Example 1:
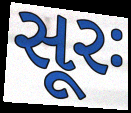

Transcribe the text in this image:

સૂરઃ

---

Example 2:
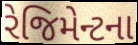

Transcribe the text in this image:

રેજિમેન્ટના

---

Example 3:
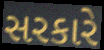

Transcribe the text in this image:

સરકારે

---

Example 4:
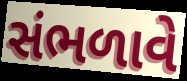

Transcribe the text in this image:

સંભળાવે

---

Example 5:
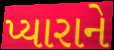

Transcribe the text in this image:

પ્યારાને